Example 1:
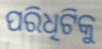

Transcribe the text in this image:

ପରିଧିଟିକୁ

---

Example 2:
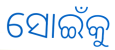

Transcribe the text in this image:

ସୋଇଁକୁ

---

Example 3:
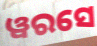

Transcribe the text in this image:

ୱରସେ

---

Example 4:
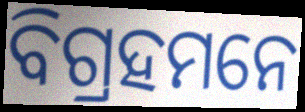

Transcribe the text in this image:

ବିଗ୍ରହମନେ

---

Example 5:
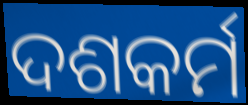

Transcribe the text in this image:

ଦଶକର୍ମ